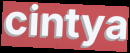
cintya